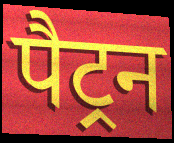
पैट्रन